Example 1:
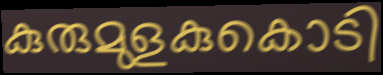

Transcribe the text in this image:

കുരുമുളകുകൊടി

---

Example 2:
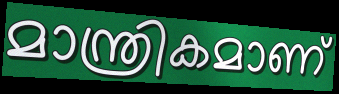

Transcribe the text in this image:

മാന്ത്രികമാണ്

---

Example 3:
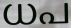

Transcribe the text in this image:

ധപ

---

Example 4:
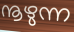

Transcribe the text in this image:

നൂഴുന്ന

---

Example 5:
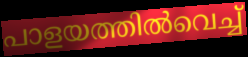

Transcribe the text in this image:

പാളയത്തിൽവെച്ച്